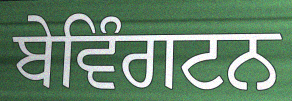
ਬੇਵਿੰਗਟਨ